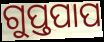
ଗୁପ୍ତପାପ